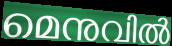
മെനുവിൽ